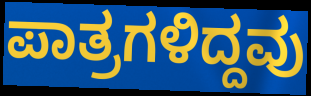
ಪಾತ್ರಗಳಿದ್ದವು